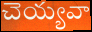
చెయ్యవా